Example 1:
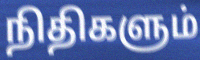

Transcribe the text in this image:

நிதிகளும்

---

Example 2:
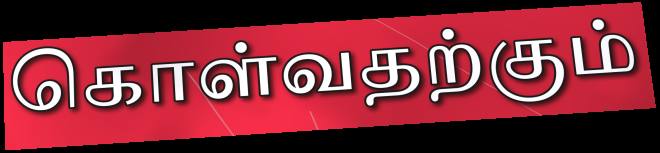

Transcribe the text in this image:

கொள்வதற்கும்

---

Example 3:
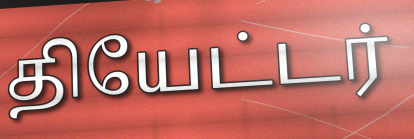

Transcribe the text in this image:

தியேட்டர்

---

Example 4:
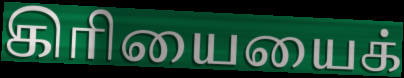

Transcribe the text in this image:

கிரியையைக்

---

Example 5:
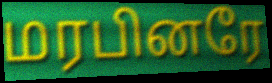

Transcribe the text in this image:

மரபினரே